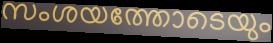
സംശയത്തോടെയും